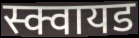
स्क्वायड